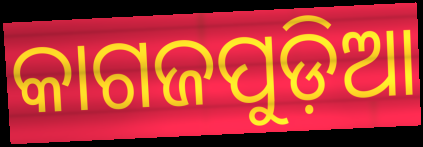
କାଗଜପୁଡ଼ିଆ